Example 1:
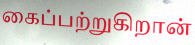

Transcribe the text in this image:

கைப்பற்றுகிறான்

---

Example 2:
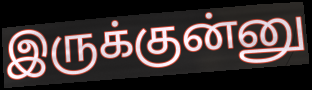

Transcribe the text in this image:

இருக்குன்னு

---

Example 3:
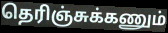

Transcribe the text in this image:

தெரிஞ்சுக்கணும்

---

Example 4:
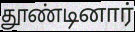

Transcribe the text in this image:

தூண்டினார்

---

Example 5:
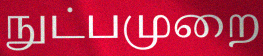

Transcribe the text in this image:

நுட்பமுறை